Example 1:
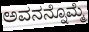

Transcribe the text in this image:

ಅವನನ್ನೊಮ್ಮೆ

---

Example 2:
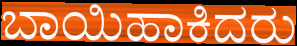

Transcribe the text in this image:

ಬಾಯಿಹಾಕಿದರು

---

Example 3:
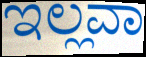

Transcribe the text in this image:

ಇಲ್ಲವಾ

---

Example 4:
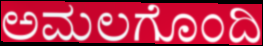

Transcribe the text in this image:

ಅಮಲಗೊಂದಿ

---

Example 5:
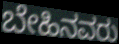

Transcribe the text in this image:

ಬೇಹಿನವರು